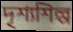
দৃশ্যশিল্প